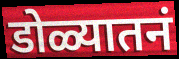
डोळ्यातनं